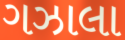
ગઝાલા